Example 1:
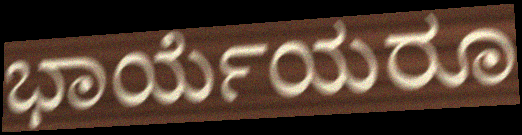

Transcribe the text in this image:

ಭಾರ್ಯೆಯರೂ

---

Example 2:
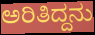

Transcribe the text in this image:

ಅರಿತಿದ್ದನು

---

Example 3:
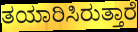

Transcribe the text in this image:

ತಯಾರಿಸಿರುತ್ತಾರೆ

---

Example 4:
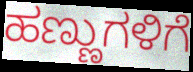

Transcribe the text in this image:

ಹಣ್ಣುಗಳಿಗೆ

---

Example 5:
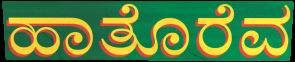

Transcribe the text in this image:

ಹಾತೊರೆವ